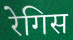
रेगिस